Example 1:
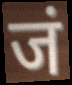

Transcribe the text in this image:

जं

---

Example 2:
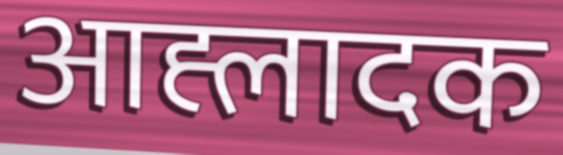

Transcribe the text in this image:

आह्लादक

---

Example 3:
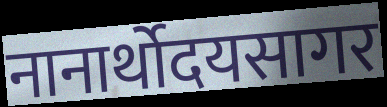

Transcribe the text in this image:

नानार्थोदयसागर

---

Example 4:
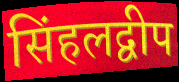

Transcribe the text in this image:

सिंहलद्वीप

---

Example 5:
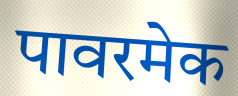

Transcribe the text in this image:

पावरमेक